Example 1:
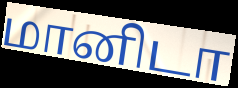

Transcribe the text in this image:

மானிடா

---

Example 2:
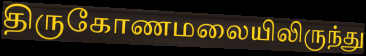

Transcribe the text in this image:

திருகோணமலையிலிருந்து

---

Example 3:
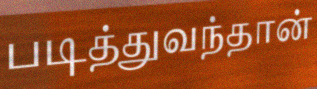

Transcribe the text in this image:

படித்துவந்தான்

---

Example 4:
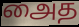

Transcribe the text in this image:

அைத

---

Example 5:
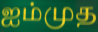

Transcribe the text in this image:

ஐம்முத